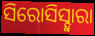
ସିରୋସିସ୍ଦ୍ୱାରା